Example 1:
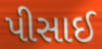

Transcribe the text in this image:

પીસાઈ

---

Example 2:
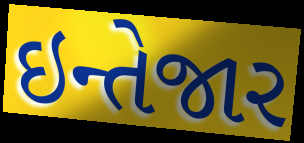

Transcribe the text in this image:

ઇન્તેજાર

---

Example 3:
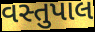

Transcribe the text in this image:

વસ્તુપાલ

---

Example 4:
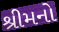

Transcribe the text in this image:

શ્રીમનો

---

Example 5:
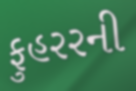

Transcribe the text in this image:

ફુહરરની